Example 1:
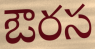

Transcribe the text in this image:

ఔరస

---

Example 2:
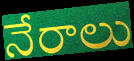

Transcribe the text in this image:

నేరాలు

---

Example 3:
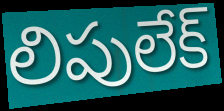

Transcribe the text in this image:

లిపులేక్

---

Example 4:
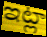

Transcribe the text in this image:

ఇట్లా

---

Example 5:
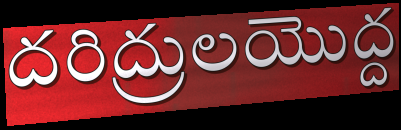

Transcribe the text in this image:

దరిద్రులయొద్ద